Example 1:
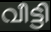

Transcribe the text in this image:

വീട്ടി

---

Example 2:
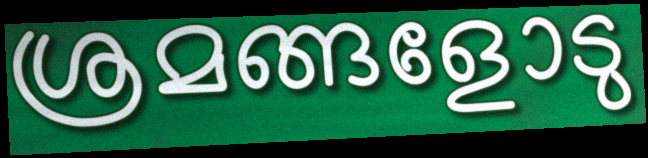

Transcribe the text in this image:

ശ്രമങ്ങളോടു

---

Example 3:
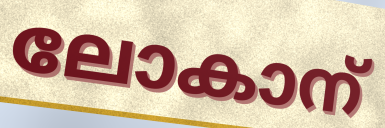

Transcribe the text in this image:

ലോകാന്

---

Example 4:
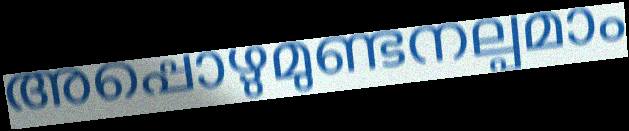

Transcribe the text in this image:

അപ്പൊഴുമുണ്ടനല്പമാം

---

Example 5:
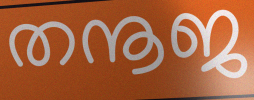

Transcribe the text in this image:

തനൂജ